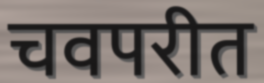
चवपरीत